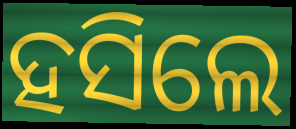
ହସିଲେ